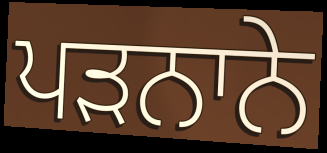
ਪੜਨਾਨੇ